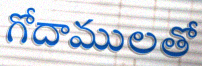
గోదాములతో